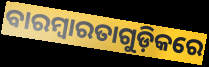
ବାରମ୍ବାରତାଗୁଡ଼ିକରେ